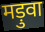
मड़ुवा